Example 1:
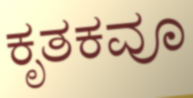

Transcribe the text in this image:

ಕೃತಕವೂ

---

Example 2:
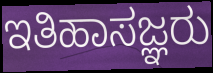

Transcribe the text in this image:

ಇತಿಹಾಸಜ್ಞರು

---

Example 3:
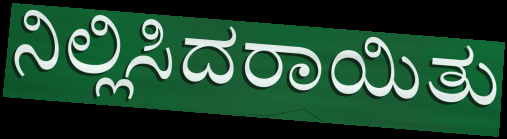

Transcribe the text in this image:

ನಿಲ್ಲಿಸಿದರಾಯಿತು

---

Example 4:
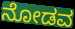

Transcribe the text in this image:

ನೋಡವ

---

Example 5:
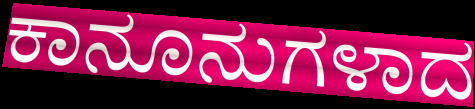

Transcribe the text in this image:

ಕಾನೂನುಗಳಾದ